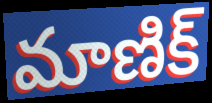
మాణిక్